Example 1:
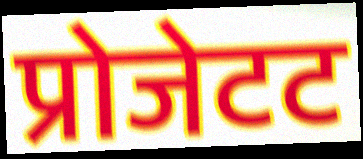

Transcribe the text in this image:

प्रोजेटट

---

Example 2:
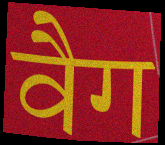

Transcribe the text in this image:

वैग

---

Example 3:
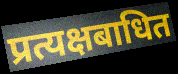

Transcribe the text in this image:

प्रत्यक्षबाधित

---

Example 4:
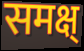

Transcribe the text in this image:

समक्ष्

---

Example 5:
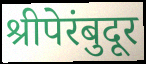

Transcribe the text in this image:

श्रीपेरंबुदूर